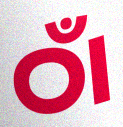
ଠାଁ